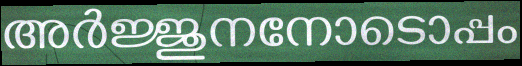
അർജ്ജുനനോടൊപ്പം